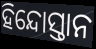
ହିନ୍ଦୋସ୍ତାନ